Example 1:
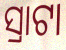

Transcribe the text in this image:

ସ୍ରାଟା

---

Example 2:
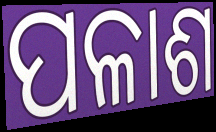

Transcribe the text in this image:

ପଳାଶ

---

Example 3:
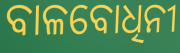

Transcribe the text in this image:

ବାଳବୋଧିନୀ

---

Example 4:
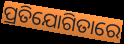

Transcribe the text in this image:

ପ୍ରତିଯୋଗିତାରେ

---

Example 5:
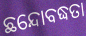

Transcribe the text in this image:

ଛନ୍ଦୋବଦ୍ଧତା